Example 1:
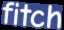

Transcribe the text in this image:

fitch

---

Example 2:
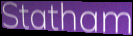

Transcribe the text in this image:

Statham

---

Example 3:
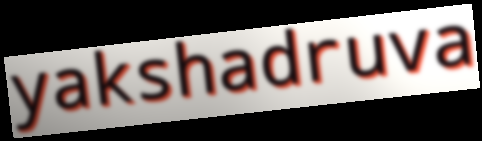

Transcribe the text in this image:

yakshadruva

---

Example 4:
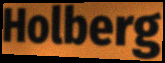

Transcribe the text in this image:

Holberg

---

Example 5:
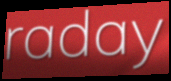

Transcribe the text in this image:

raday